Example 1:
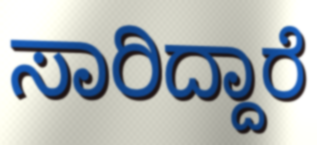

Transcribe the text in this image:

ಸಾರಿದ್ದಾರೆ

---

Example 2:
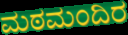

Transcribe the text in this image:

ಮಠಮಂದಿರ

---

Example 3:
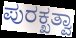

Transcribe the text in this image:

ಪುರಕ್ಖತ್ವಾ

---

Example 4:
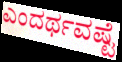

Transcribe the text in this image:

ಎಂದರ್ಥವಷ್ಟೆ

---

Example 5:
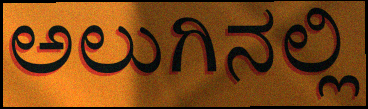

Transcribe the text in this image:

ಅಲುಗಿನಲ್ಲಿ